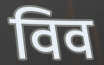
विव